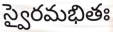
స్వైరమభితః